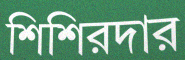
শিশিরদার